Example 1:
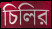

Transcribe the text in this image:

চিলির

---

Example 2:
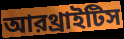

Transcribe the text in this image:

আরথ্রাইটিস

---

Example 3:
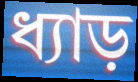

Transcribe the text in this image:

ধ্যাড়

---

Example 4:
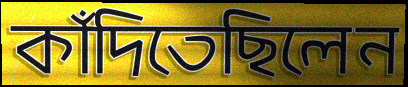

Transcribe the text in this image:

কাঁদিতেছিলেন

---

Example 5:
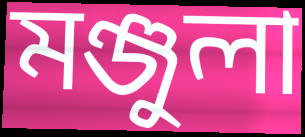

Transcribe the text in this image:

মঞ্জুলা